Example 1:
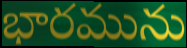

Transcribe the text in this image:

భారమును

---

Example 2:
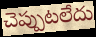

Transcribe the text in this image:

చెప్పుటలేదు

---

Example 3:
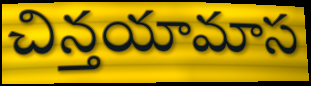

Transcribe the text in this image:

చిన్తయామాస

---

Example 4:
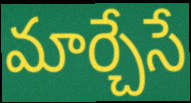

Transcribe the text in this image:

మార్చేసే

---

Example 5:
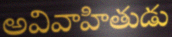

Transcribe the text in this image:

అవివాహితుడు